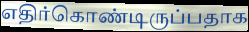
எதிர்கொண்டிருப்பதாக